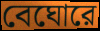
বেঘোরে